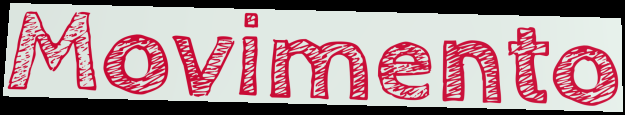
Movimento